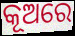
କୂଅରେ